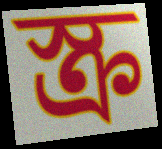
স্ক্র